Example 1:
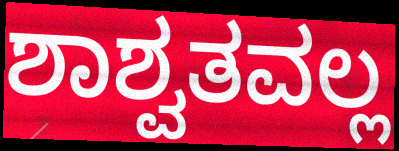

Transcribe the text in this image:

ಶಾಶ್ವತವಲ್ಲ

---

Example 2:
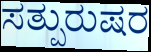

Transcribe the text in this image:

ಸತ್ಪುರುಷರ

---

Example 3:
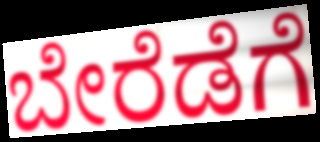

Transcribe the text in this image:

ಬೇರೆಡೆಗೆ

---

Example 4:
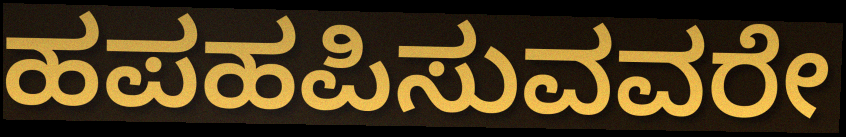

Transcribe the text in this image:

ಹಪಹಪಿಸುವವರೇ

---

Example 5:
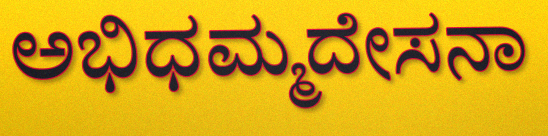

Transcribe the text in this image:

ಅಭಿಧಮ್ಮದೇಸನಾ